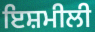
ਇਸ਼ਮੀਲੀ